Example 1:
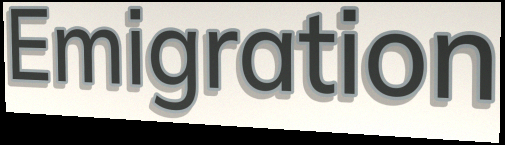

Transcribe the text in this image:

Emigration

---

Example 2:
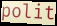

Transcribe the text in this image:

polit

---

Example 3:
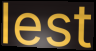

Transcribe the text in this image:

lest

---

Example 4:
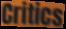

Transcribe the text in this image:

Critics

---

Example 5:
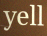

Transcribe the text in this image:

yell